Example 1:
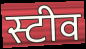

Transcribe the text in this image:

स्‍टीव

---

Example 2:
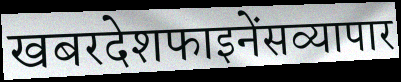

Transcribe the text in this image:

खबरदेशफाइनेंसव्यापार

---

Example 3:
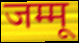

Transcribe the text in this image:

जम्मू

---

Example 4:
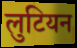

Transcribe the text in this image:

लुटियन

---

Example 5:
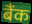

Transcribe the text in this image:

बैंक